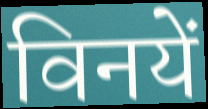
विनयें